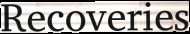
Recoveries